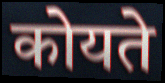
कोयते